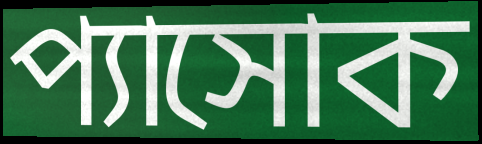
প্যাসোক